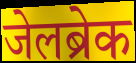
जेलब्रेक